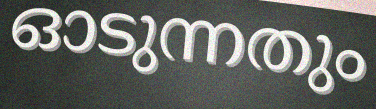
ഓടുന്നതും